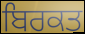
ਬਿਰਕਤ